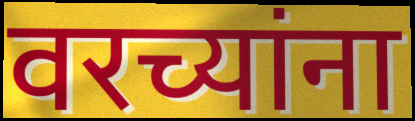
वरच्यांना